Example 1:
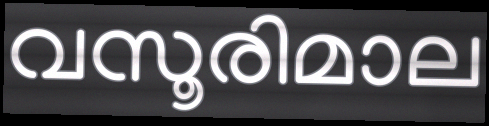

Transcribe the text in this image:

വസൂരിമാല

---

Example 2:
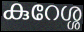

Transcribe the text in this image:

കുറേശ്ശ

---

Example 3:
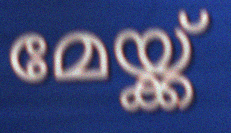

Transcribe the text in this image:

മേയ്ക്ക്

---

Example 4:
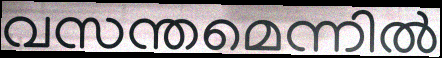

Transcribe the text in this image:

വസന്തമെന്നിൽ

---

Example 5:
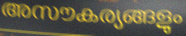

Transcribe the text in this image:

അസൗകര്യങ്ങളും